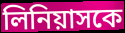
লিনিয়াসকে